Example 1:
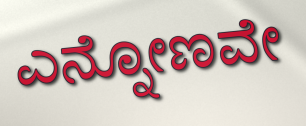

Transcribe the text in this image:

ಎನ್ನೋಣವೇ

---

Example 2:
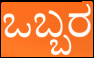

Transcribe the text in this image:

ಒಬ್ಬರ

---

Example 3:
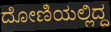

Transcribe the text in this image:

ದೋಣಿಯಲ್ಲಿದ್ದ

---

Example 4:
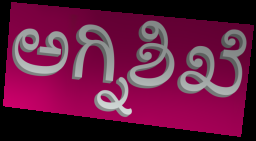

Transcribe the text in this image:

ಅಗ್ನಿಶಿಖೆ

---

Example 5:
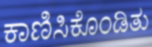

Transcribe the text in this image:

ಕಾಣಿಸಿಕೊಂಡಿತು